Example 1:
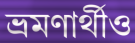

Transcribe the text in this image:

ভ্রমণার্থীও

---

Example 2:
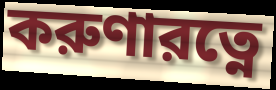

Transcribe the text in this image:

করুণারত্নে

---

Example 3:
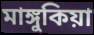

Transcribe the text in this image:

মাঙ্গুকিয়া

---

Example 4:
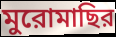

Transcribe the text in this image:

মুরোমাছির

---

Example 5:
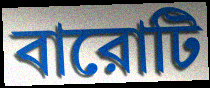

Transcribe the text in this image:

বারোটি